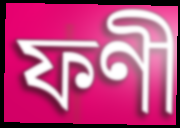
ফণী